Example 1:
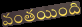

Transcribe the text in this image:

వంతయింది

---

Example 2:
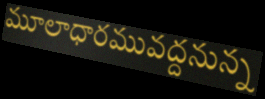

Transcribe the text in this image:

మూలాధారమువద్దనున్న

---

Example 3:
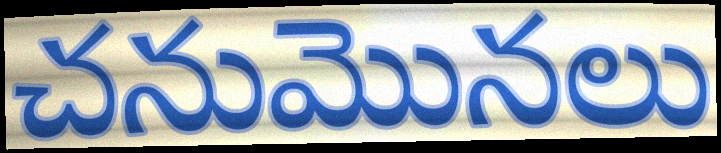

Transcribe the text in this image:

చనుమొనలు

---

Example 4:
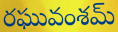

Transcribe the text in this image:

రఘువంశమ్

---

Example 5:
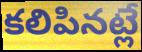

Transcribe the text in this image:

కలిపినట్లే